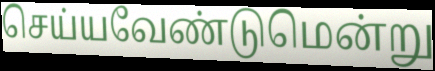
செய்யவேண்டுமென்று